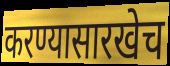
करण्यासारखेच